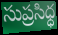
సుప్రసిధ్ధ